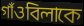
গাঁওবিলাকে